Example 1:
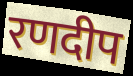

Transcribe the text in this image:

रणदीप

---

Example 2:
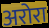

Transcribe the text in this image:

अरोरा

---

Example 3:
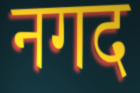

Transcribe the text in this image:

नगद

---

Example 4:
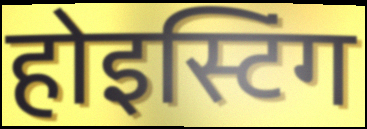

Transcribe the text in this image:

होइस्टिंग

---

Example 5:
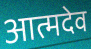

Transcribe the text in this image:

आत्मदेव